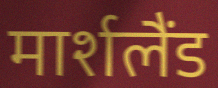
मार्शलैंड